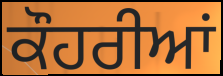
ਕੌਹਰੀਆਂ